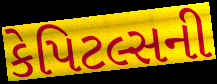
કેપિટલ્સની